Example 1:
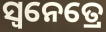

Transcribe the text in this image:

ସ୍ୱନେତ୍ରେ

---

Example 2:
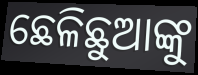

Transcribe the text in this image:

ଛେଳିଛୁଆଙ୍କୁ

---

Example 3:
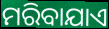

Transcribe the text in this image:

ମରିବାଯାଏ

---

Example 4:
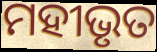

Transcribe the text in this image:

ମହୀଭୃତ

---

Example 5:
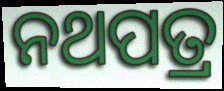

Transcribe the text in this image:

ନଥପତ୍ର